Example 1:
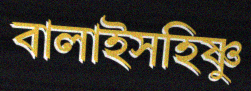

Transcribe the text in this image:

বালাইসহিষ্ণু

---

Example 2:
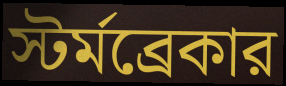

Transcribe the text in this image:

স্টর্মব্রেকার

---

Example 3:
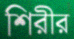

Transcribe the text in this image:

শিরীর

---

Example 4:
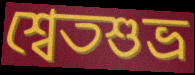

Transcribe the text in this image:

শ্বেতশুভ্র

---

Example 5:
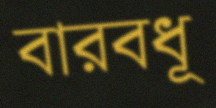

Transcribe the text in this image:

বারবধূ